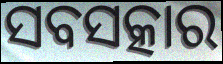
ସବସତ୍କାର